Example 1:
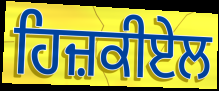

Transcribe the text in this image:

ਹਿਜ਼ਕੀਏਲ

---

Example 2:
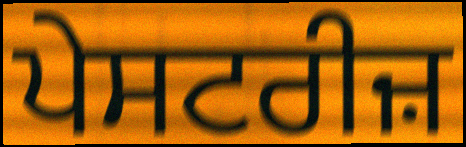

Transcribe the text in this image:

ਪੇਸਟਰੀਜ਼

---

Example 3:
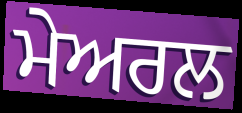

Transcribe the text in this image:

ਮੇਅਰਲ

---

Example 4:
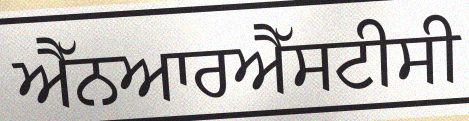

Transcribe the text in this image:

ਐੱਨਆਰਐੱਸਟੀਸੀ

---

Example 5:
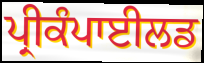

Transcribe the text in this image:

ਪ੍ਰੀਕੰਪਾਈਲਡ